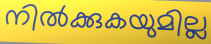
നിൽക്കുകയുമില്ല